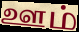
ஊம்